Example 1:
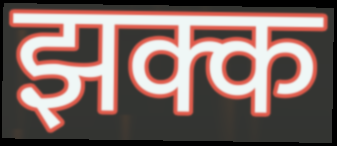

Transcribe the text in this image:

झक्क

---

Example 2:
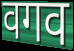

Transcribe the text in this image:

वगव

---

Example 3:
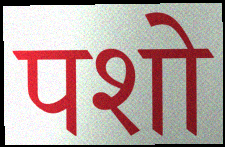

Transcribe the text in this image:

पशो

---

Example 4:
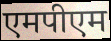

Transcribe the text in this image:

एमपीएम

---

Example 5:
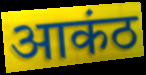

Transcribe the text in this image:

आकंठ